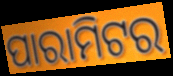
ପାରାମିଟର